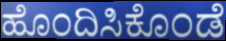
ಹೊಂದಿಸಿಕೊಂಡೆ